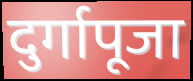
दुर्गापूजा